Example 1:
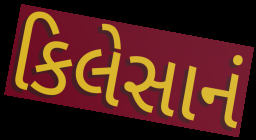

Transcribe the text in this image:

કિલેસાનં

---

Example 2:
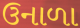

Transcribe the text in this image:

ઉનાળા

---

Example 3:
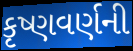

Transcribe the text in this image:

કૃષ્ણવર્ણની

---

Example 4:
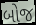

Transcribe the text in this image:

બોજ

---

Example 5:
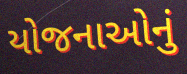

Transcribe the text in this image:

યોજનાઓનું